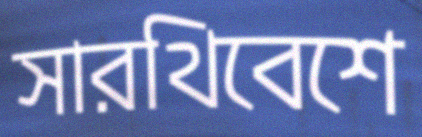
সারথিবেশে